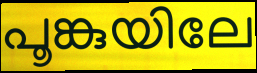
പൂങ്കുയിലേ